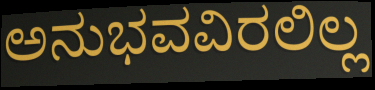
ಅನುಭವವಿರಲಿಲ್ಲ